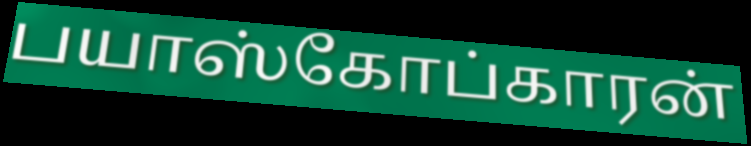
பயாஸ்கோப்காரன்